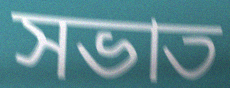
সভাত